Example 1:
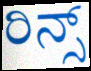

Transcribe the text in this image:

ರಿನ್ಸ್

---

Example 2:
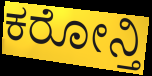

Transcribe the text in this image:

ಕರೋನ್ತಿ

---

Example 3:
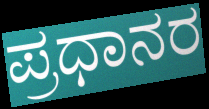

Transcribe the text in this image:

ಪ್ರಧಾನರ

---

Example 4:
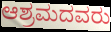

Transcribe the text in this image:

ಆಶ್ರಮದವರು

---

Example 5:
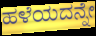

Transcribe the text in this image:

ಹಳೆಯದನ್ನೇ